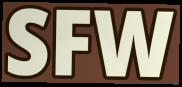
SFW